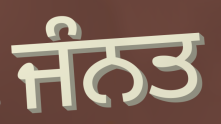
ਜੰਨਤ